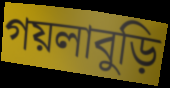
গয়লাবুড়ি